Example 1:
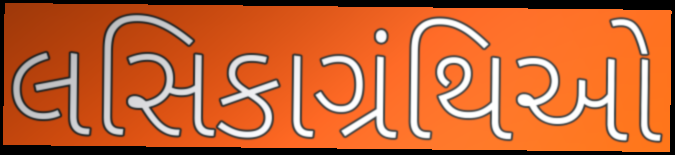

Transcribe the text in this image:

લસિકાગ્રંથિઓ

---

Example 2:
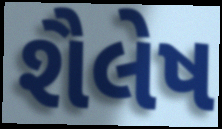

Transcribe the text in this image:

શૈલેષ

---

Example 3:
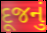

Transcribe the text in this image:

દૂજનું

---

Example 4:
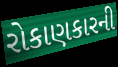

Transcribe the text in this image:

રોકાણકારની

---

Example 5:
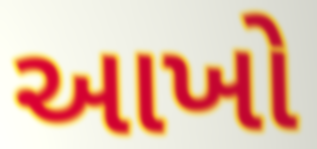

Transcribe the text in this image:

આખો